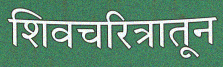
शिवचरित्रातून